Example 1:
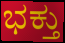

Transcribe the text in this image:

ಭಕ್ತು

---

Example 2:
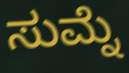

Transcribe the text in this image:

ಸುಮ್ನೆ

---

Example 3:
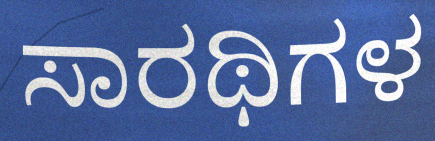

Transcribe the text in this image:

ಸಾರಥಿಗಳ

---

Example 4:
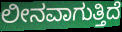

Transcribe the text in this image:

ಲೀನವಾಗುತ್ತಿದೆ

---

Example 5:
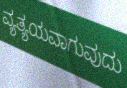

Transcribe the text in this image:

ವ್ಯತ್ಯಯವಾಗುವುದು